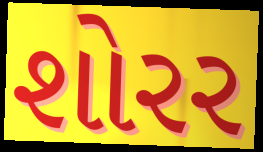
શોરર